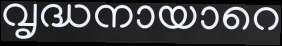
വൃദ്ധനായാറെ